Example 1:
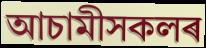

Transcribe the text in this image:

আচামীসকলৰ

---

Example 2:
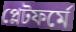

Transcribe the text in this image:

প্লেটফৰ্মে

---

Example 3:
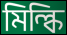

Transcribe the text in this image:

মিল্কি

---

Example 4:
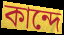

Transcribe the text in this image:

কান্দে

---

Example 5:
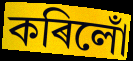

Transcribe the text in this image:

কৰিলোঁ